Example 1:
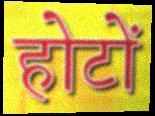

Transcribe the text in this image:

होटों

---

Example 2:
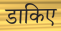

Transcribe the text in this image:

डाकिए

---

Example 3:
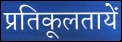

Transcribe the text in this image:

प्रतिकूलतायें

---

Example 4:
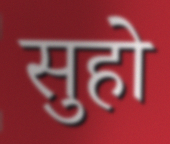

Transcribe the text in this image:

सुहो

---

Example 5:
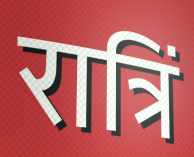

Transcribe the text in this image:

रात्रिं